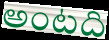
అంటది